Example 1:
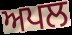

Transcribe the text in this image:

ਅਪਲ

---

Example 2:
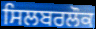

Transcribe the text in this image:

ਸਿਲਬਰਲੌਕ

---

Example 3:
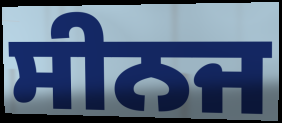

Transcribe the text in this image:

ਸੀਨਜ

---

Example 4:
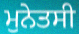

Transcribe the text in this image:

ਮੁਨੇਤਸੀ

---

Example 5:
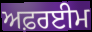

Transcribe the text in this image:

ਅਫ਼ਰਈਮ